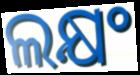
ଲକ୍ଷଂ